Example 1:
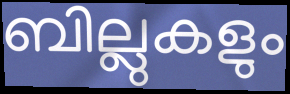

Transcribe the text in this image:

ബില്ലുകളും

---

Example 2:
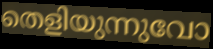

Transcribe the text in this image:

തെളിയുന്നുവോ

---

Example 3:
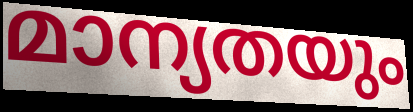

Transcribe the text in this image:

മാന്യതയും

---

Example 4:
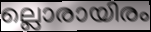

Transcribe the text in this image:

ല്ലൊരായിരം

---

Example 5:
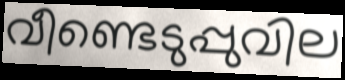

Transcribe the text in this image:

വീണ്ടെടുപ്പുവില